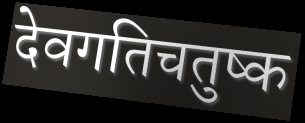
देवगतिचतुष्क